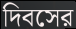
দিবসের